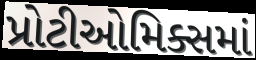
પ્રોટીઓમિક્સમાં